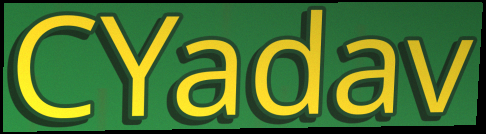
CYadav